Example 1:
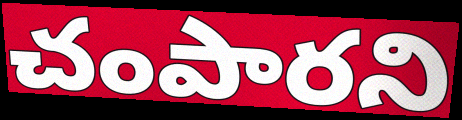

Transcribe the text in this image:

చంపారని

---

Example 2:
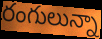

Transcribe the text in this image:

రంగులున్నా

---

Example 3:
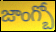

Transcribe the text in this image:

జాంగ్బో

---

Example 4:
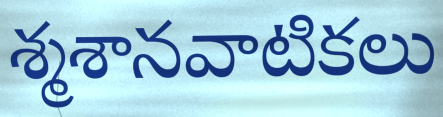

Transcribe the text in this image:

శ్మశానవాటికలు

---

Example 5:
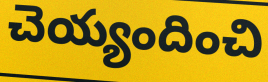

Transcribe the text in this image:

చెయ్యందించి